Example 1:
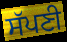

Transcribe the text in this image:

ਸੱਪਣੀ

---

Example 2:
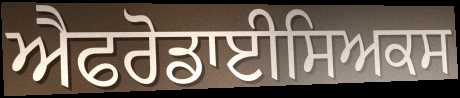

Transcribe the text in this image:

ਐਫਰੋਡਾਈਸਿਅਕਸ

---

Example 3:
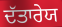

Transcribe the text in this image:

ਦੱਤਾਰੇਯ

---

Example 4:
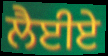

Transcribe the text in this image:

ਲੈਈਏ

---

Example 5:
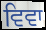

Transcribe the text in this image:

ਵਿਵਾ